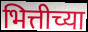
भित्तीच्या